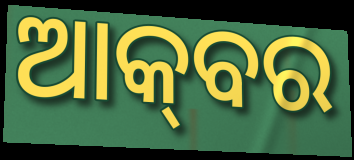
ଆକ୍‌ବର